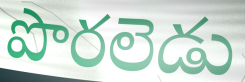
పొరలెడు